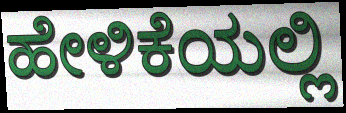
ಹೇಳಿಕೆಯಲ್ಲಿ